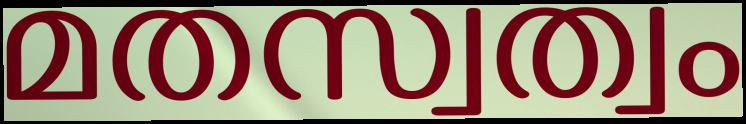
മതസ്വത്വം